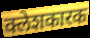
क्लेशकारक